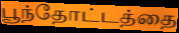
பூந்தோட்டத்தை